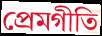
প্রেমগীতি